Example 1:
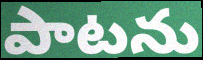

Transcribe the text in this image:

పాటను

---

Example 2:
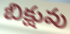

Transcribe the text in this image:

బిక్షువు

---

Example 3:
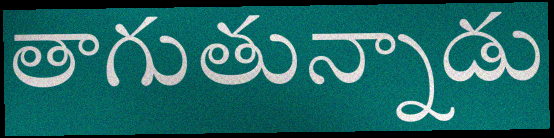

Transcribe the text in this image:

తాగుతున్నాడు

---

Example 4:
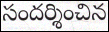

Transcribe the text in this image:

సందర్శించిన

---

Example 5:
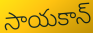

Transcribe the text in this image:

సాయకాన్